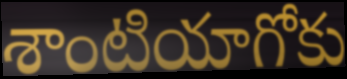
శాంటియాగోకు